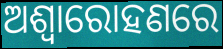
ଅଶ୍ୱାରୋହଣରେ